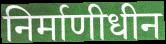
निर्माणीधीन